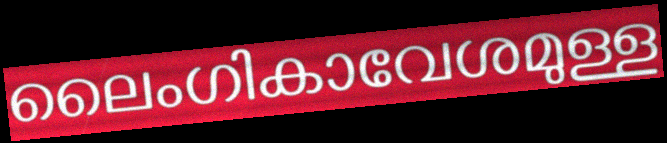
ലൈംഗികാവേശമുള്ള